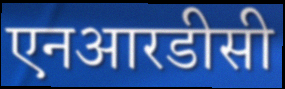
एनआरडीसी